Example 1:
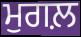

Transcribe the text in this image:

ਮੁਗਲ਼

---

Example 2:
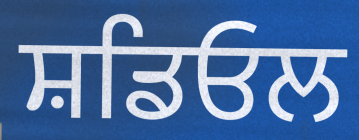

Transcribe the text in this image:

ਸ਼ਡਿਓਲ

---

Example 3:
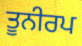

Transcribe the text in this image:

ਤੂਨੀਰਪ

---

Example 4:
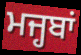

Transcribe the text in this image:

ਮਜ੍ਹਬਾਂ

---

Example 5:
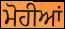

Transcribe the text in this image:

ਮੋਹੀਆਂ